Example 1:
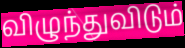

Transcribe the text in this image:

விழுந்துவிடும்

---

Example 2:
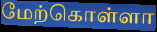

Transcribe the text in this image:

மேற்கொள்ளா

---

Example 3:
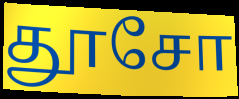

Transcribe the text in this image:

தூசோ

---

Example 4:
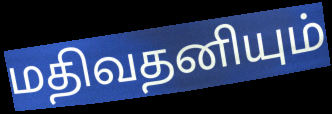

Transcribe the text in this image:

மதிவதனியும்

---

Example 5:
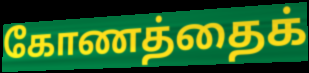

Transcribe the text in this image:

கோணத்தைக்